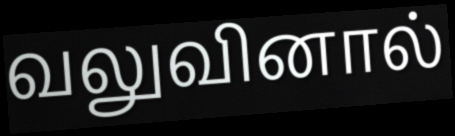
வலுவினால்